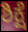
ಶಿಕ್ಷೆ